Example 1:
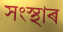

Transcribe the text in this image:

সংস্থাৰ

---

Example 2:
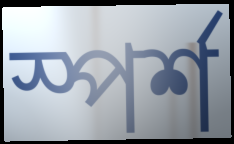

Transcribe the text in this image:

স্পৰ্শ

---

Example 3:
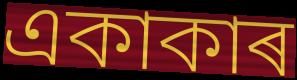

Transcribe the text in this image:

একাকাৰ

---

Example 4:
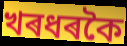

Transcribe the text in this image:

খৰধৰকৈ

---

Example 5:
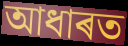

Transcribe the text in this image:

আধাৰত